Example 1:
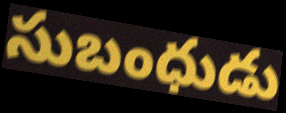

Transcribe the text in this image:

సుబంధుడు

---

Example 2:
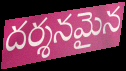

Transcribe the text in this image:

దర్శనమైన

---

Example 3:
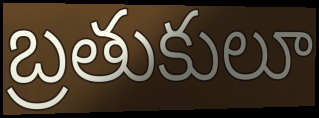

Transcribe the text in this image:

బ్రతుకులూ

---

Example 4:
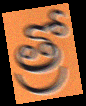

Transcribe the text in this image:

త్రో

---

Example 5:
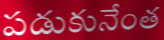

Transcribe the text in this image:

పడుకునేంత